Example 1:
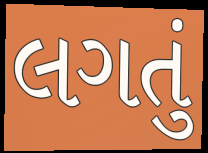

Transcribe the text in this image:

લગતું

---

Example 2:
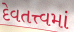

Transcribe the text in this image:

દેવતત્ત્વમાં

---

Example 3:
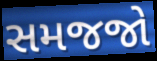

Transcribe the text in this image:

સમજજો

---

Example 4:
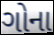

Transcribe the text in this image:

ગોના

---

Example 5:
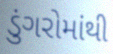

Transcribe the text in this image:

ડુંગરોમાંથી